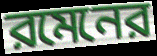
রমেনের